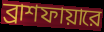
ব্রাশফায়ারে